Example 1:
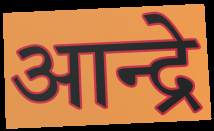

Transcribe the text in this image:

आन्द्रे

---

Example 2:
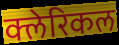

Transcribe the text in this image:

क्लेरिकल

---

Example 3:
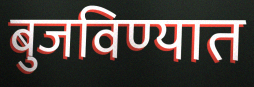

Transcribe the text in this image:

बुजविण्यात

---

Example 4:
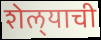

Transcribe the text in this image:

शेल्याची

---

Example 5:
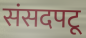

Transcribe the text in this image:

संसदपटू